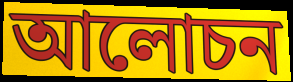
আলোচন